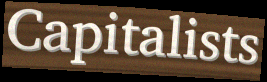
Capitalists